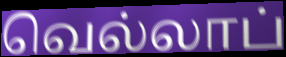
வெல்லாப்